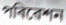
পৰিৱেশন